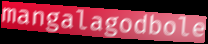
mangalagodbole